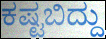
ಕಷ್ಟಬಿದ್ದು